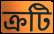
ক্রটি